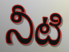
నీటి